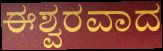
ಈಶ್ವರವಾದ